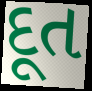
દૂત